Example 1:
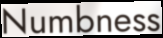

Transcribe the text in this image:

Numbness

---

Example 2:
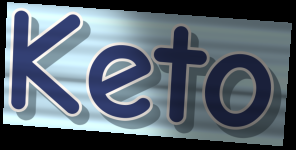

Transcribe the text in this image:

Keto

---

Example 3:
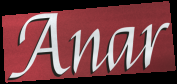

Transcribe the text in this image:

Anar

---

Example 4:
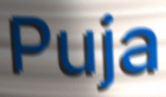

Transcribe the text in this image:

Puja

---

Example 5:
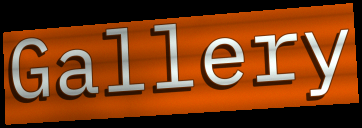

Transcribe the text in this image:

Gallery